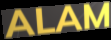
ALAM